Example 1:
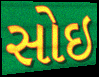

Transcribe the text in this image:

સોઇ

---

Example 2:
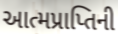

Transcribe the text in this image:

આત્મપ્રાપ્તિની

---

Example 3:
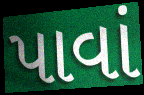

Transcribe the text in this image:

પાવાં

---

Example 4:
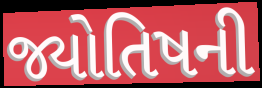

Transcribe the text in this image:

જ્યોતિષની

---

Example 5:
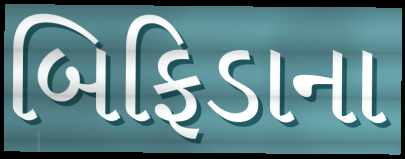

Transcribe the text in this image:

બિફિડાના